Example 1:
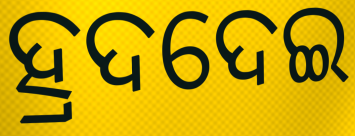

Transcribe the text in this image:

ହ୍ରଦଦେଇ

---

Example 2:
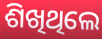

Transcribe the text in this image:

ଶିଖିଥିଲେ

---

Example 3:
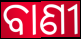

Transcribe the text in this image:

ବାଣୀ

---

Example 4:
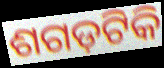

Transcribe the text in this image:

ଶଗଡ଼ଟିକି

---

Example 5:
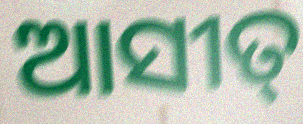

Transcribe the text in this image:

ଆସୀତ୍